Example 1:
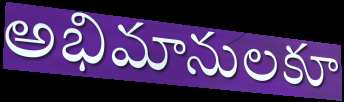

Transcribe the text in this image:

అభిమానులకూ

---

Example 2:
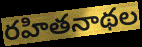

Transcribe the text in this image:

రహితనాథల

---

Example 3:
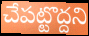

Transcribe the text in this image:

చేపట్టొద్దని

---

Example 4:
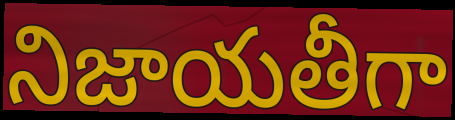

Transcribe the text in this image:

నిజాయతీగా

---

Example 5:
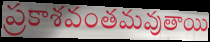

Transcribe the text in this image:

ప్రకాశవంతమవుతాయి